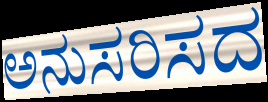
ಅನುಸರಿಸದ